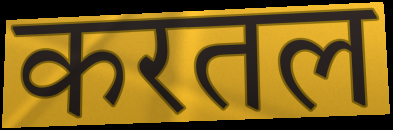
करतल